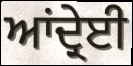
ਆਂਦ੍ਰੇਈ